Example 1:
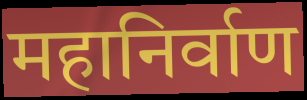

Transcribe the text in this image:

महानिर्वाण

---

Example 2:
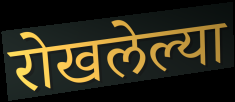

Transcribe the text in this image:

रोखलेल्या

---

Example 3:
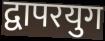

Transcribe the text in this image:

द्वापरयुग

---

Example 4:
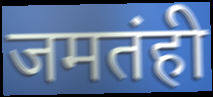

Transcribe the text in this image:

जमतंही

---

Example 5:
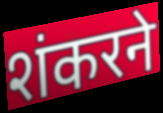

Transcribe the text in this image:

शंकरने